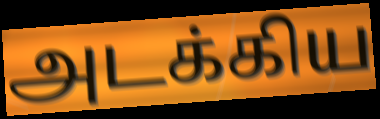
அடக்கிய